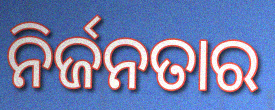
ନିର୍ଜନତାର